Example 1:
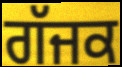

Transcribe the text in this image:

ਗੱਜਕ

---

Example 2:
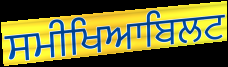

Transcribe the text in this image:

ਸਮੀਖਿਆਬਿਲਟ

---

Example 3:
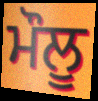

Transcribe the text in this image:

ਮੌਲੂ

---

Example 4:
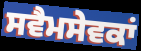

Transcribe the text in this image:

ਸਵੈਮਸੇਵਕਾਂ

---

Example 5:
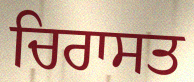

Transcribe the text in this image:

ਚਿਰਾਸਤ